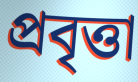
প্রবৃত্তা